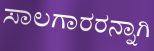
ಸಾಲಗಾರರನ್ನಾಗಿ